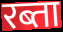
रब्ता